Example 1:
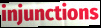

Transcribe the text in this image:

injunctions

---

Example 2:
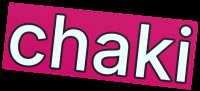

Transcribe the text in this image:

chaki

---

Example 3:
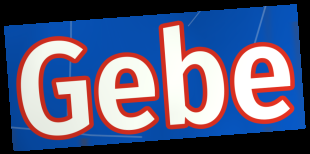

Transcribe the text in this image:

Gebe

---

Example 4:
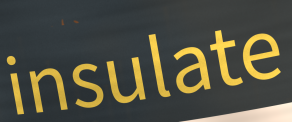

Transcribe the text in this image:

insulate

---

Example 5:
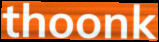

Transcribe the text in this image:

thoonk